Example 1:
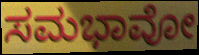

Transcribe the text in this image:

ಸಮಭಾವೋ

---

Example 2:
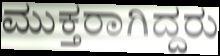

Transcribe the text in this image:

ಮುಕ್ತರಾಗಿದ್ದರು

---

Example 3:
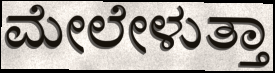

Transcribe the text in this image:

ಮೇಲೇಳುತ್ತಾ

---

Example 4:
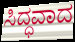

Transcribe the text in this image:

ಸಿದ್ಧವಾದ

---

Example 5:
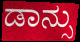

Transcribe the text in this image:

ಡಾನ್ಸು